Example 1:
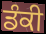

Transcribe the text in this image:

ਡੰਕੀ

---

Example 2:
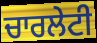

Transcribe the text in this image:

ਚਾਰਲੇਟੀ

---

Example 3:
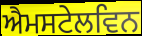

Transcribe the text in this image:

ਐਮਸਟੇਲਵਿਨ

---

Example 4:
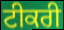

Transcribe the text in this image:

ਟੀਕਰੀ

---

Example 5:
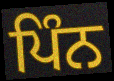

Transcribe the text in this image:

ਪਿੰਨ